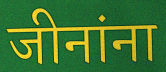
जीनांना